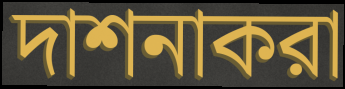
দাশনাকরা